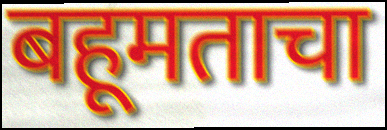
बहूमताचा